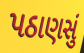
પઠાણસું